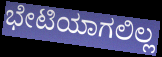
ಭೇಟಿಯಾಗಲಿಲ್ಲ